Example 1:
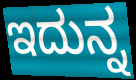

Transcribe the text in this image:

ಇದುನ್ನ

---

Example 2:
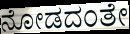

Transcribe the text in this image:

ನೋಡದಂತೇ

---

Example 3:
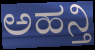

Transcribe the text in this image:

ಅಹನ್ತಿ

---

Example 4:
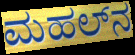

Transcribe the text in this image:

ಮಹಲ್‌ನ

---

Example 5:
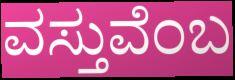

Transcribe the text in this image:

ವಸ್ತುವೆಂಬ